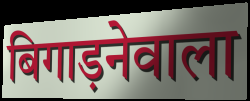
बिगाड़नेवाला